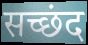
सच्छंद